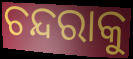
ଚନ୍ଦରାକୁ